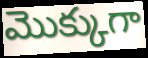
మొక్కుగా